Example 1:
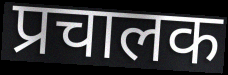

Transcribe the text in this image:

प्रचालक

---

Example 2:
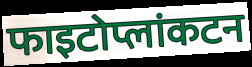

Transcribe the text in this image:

फाइटोप्लांकटन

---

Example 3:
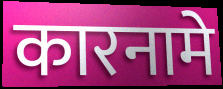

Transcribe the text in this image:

कारनामे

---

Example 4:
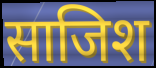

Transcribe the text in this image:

साजिश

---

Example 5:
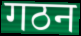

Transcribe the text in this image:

गठन